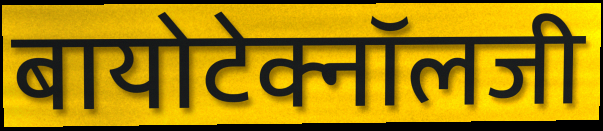
बायोटेक्नॉलजी